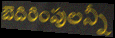
బెదిరింపులన్నీ